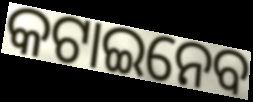
କଟାଇନେବ